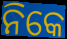
ନିକେ